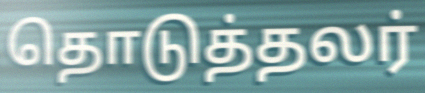
தொடுத்தலர்